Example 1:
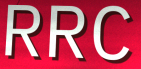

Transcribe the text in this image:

RRC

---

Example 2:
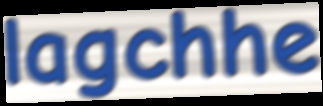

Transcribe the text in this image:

lagchhe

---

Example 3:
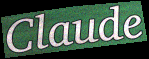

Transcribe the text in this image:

Claude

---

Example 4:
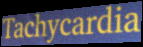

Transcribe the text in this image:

Tachycardia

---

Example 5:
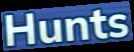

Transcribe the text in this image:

Hunts